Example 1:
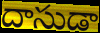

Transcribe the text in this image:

దాసుడా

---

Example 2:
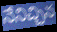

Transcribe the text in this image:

నేనిచ్చిన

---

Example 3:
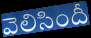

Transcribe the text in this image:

వెలిసిందీ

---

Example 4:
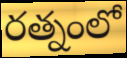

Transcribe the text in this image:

రత్నంలో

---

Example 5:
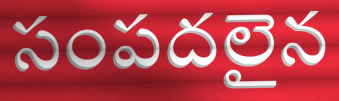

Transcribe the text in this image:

సంపదలైన